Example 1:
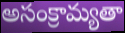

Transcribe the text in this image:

అసంక్రామ్యతా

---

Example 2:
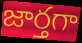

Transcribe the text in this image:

జార్తగా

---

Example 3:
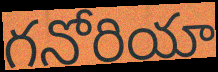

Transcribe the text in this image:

గనోరియా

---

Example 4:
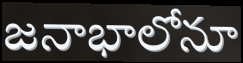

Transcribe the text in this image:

జనాభాలోనూ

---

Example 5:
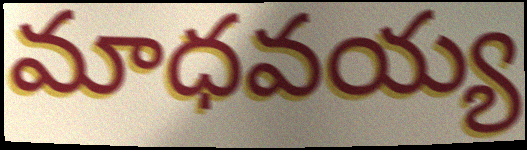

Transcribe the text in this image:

మాధవయ్య